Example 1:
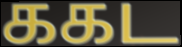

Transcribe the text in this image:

ககட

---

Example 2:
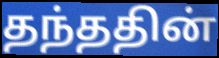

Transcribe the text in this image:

தந்ததின்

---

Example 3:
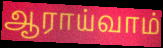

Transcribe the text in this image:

ஆராய்வாம்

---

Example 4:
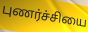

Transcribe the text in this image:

புணர்ச்சியை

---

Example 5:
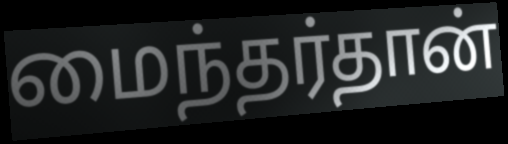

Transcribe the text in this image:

மைந்தர்தான்